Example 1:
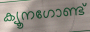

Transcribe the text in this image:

ക്യൂനഗോണ്ട്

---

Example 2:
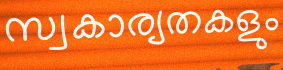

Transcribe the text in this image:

സ്വകാര്യതകളും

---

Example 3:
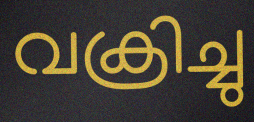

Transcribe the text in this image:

വക്രിച്ചു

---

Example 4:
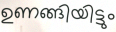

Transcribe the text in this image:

ഉണങ്ങിയിട്ടും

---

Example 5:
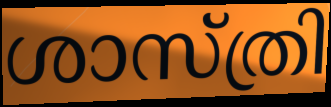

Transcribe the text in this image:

ശാസ്ത്രി